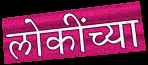
लोकींच्या